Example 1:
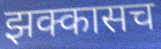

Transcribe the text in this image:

झक्कासच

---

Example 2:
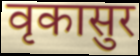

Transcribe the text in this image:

वृकासुर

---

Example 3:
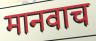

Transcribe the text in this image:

मानवाच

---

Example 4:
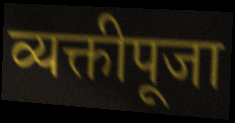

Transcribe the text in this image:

व्यक्तीपूजा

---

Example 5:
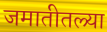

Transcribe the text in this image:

जमातीतल्या